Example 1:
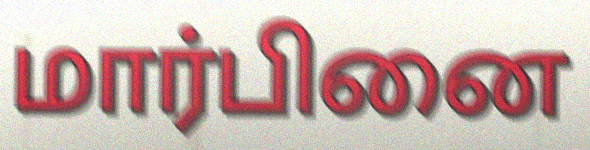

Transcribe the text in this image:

மார்பினை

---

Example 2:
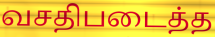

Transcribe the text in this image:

வசதிபடைத்த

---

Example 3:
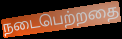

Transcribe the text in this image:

நடைபெற்றதை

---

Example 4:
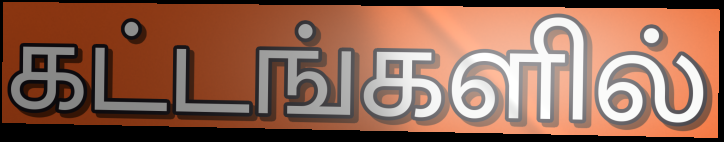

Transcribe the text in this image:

கட்டங்களில்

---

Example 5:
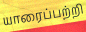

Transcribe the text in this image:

யாரைப்பற்றி